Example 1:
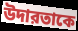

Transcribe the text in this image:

উদারতাকে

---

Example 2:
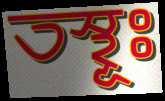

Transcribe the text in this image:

তস্থূঃ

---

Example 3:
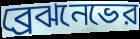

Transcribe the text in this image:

ব্রেঝনেভের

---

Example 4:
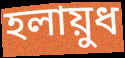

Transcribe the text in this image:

হলায়ুধ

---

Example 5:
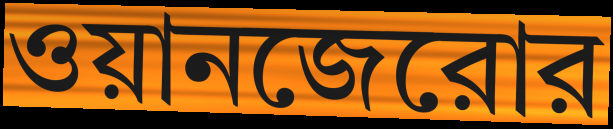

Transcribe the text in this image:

ওয়ানজেরোর